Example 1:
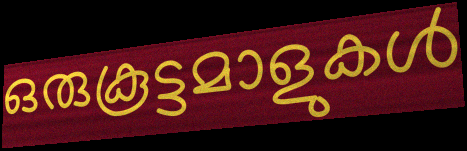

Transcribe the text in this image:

ഒരുകൂട്ടമാളുകൾ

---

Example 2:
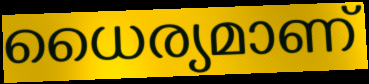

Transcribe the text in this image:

ധൈര്യമാണ്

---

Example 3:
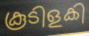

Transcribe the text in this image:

കൂടിളകി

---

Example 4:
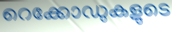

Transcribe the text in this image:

റെക്കോഡുകളുടെ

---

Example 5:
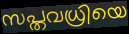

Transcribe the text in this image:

സപ്തവധ്രിയെ